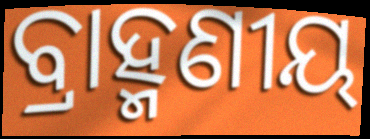
ବ୍ରାହ୍ମଣୀୟ